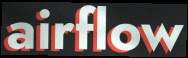
airflow